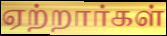
ஏற்றார்கள்